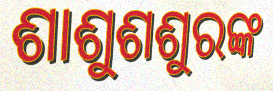
ଶାଶୁଶଶୁରଙ୍କ